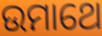
ଉମାଥେ